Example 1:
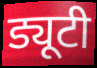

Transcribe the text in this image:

ड्यूटी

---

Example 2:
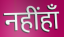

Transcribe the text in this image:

नहींहाँ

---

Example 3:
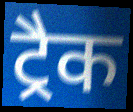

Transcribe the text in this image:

ट्रैक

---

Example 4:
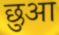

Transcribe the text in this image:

छुआ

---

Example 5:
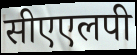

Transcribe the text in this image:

सीएएलपी